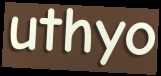
uthyo